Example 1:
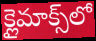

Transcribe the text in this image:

క్లైమాక్స్‌లో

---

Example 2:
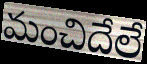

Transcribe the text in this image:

మంచిదేలే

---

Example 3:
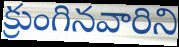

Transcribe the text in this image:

క్రుంగినవారిని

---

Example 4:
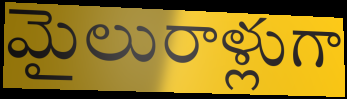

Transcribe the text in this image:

మైలురాళ్లుగా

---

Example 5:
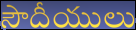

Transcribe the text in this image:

సౌదీయులు